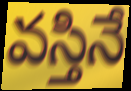
వస్తినే